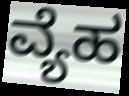
ವ್ಯೆಹ